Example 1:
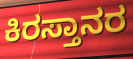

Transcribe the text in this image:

ಕಿರಸ್ತಾನರ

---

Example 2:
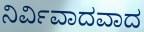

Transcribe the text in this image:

ನಿರ್ವಿವಾದವಾದ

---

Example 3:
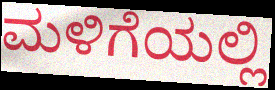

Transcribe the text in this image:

ಮಳಿಗೆಯಲ್ಲಿ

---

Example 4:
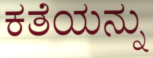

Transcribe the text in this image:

ಕತೆಯನ್ನು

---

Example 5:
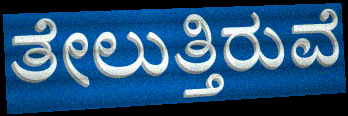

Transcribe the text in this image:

ತೇಲುತ್ತಿರುವೆ